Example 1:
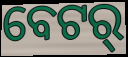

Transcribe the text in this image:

ବେଟର୍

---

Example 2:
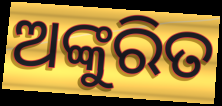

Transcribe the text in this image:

ଅଙ୍କୁରିତ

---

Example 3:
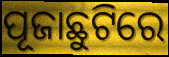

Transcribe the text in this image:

ପୂଜାଛୁଟିରେ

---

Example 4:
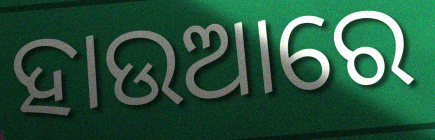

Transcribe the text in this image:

ହାଉଆରେ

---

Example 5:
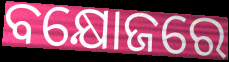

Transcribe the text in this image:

ବକ୍ଷୋଜରେ